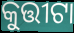
କୁତ୍ତୀଟା